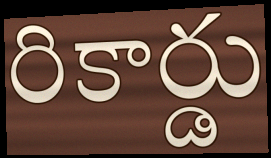
రికార్డు